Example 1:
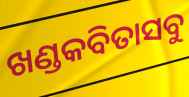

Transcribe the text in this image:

ଖଣ୍ଡକବିତାସବୁ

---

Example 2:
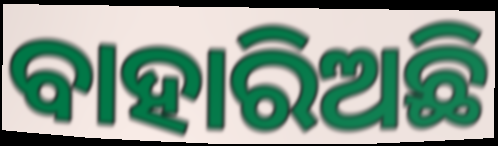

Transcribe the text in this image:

ବାହାରିଅଛି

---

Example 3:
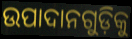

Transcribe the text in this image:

ଉପାଦାନଗୁଡ଼ିକୁ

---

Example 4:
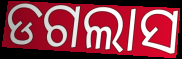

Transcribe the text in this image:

ଡଗଲାସ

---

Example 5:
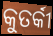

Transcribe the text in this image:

କୁତର୍କୀ